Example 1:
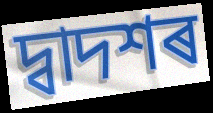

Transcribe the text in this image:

দ্বাদশৰ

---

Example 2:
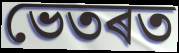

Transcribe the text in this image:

ভেতৰত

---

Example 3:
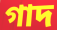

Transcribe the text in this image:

গাদ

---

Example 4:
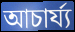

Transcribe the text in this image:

আচাৰ্য্য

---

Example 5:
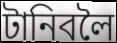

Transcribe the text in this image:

টানিবলৈ